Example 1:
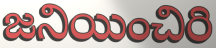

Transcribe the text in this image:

జనియించిరి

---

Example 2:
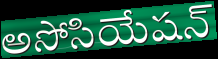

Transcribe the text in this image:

అసోసియేషన్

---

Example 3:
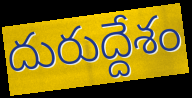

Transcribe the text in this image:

దురుద్దేశం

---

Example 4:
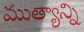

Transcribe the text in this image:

ముత్యాన్ని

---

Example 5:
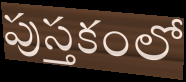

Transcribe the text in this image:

పుస్తకంలో